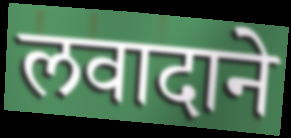
लवादाने